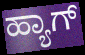
ಹ್ಯಾಗ್